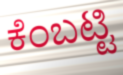
ಕೆಂಬಟ್ಟಿ